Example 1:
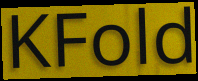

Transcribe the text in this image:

KFold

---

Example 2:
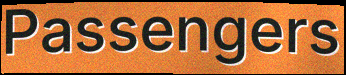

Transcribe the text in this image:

Passengers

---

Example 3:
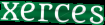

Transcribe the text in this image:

xerces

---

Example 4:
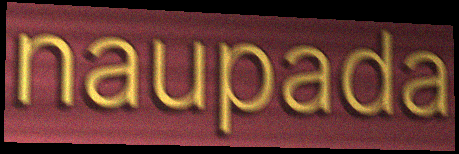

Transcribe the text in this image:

naupada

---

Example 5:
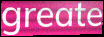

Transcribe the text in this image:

greate